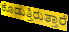
ಕೊಡುತ್ತಿರುತ್ತಾರೆ